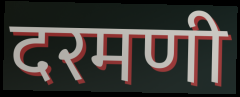
दरमणी